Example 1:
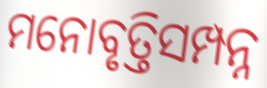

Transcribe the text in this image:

ମନୋବୃତ୍ତିସମ୍ପନ୍ନ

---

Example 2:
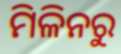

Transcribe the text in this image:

ମିଳିନରୁ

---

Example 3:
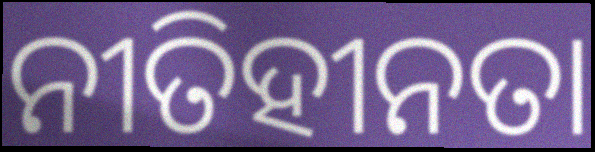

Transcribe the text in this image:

ନୀତିହୀନତା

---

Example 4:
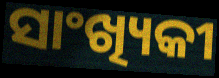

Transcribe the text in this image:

ସାଂଖ୍ୟିକୀ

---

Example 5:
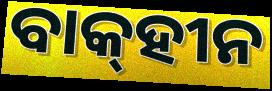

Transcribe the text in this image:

ବାକ୍‌ହୀନ